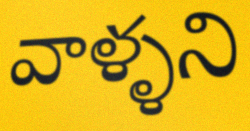
వాళ్ళని